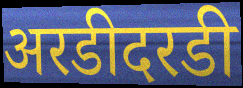
अरडीदरडी